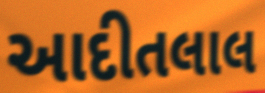
આદીતલાલ